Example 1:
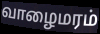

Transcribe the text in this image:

வாழைமரம்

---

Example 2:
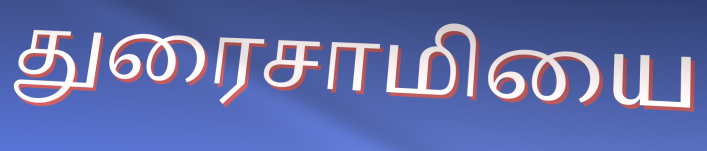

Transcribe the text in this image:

துரைசாமியை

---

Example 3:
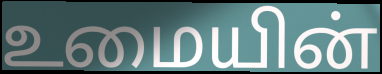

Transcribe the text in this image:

உமையின்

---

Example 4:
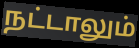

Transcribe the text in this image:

நட்டாலும்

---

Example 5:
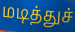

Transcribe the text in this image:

மடித்துச்